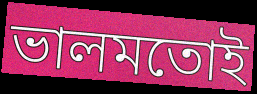
ভালমতোই